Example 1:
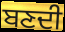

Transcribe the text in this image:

ਬਣਦੀ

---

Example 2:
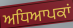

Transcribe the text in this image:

ਅਧਿਆਪਕਾਂ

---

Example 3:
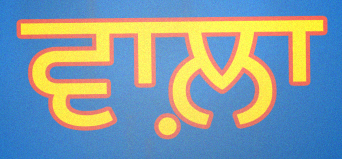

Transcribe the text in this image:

ਵਾਲ਼ਾ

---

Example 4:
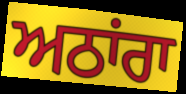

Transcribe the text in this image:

ਅਠਾਂਰਾ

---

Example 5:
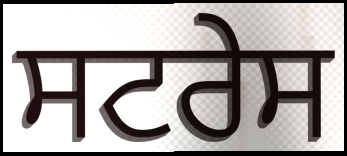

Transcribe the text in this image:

ਸਟਰੇਸ